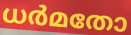
ധർമതോ